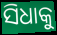
ସିଧାକୁ